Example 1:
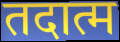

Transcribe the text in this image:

तदात्म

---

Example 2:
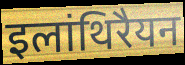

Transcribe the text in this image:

इलांथिरैयन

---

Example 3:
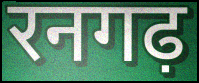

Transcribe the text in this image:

रनगढ़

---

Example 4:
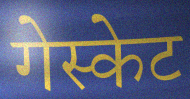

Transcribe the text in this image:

गेस्केट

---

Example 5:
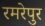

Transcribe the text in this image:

रमरेपुर